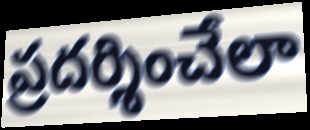
ప్రదర్శించేలా